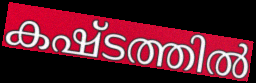
കഷ്ടത്തിൽ